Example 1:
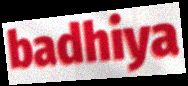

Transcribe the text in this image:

badhiya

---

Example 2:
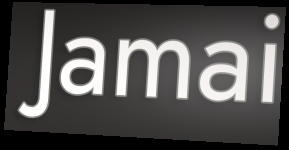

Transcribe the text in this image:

Jamai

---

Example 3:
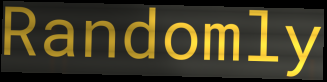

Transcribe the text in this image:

Randomly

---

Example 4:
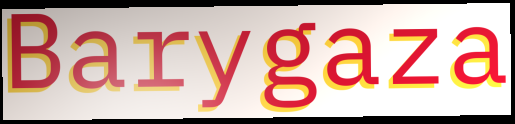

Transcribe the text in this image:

Barygaza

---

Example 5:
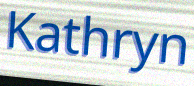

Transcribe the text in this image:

Kathryn